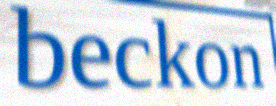
beckon